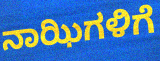
ನಾಝಿಗಳಿಗೆ